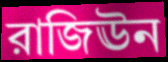
রাজিঊন